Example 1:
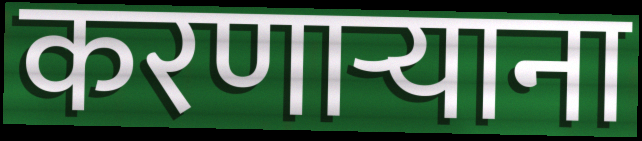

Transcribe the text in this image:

करणाऱ्याना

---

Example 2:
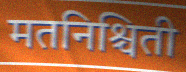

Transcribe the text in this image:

मतनिश्चिती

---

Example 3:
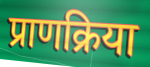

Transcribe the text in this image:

प्राणक्रिया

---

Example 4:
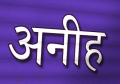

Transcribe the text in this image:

अनीह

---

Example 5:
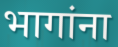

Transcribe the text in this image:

भागांना